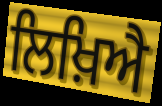
ਲਿਖ਼ਿਐ